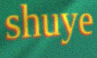
shuye